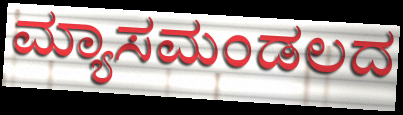
ಮ್ಯಾಸಮಂಡಲದ